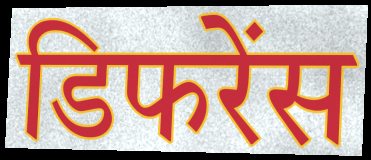
डिफरेंस